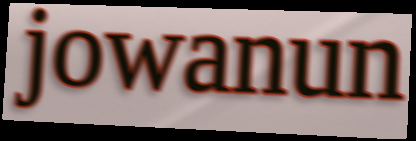
jowanun